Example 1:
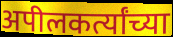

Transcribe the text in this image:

अपीलकर्त्यांच्या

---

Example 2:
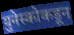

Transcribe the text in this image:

युनेस्कोकडून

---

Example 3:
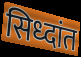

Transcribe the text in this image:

सिध्दांत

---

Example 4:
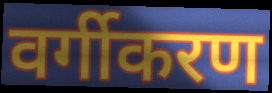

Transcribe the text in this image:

वर्गीकरण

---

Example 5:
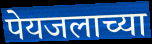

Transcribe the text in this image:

पेयजलाच्या